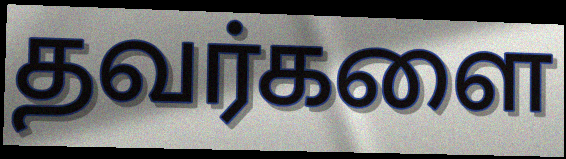
தவர்களை